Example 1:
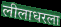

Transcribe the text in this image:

लीलाधरला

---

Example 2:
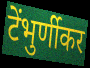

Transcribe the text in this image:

टेंभुर्णीकर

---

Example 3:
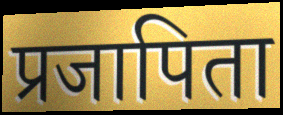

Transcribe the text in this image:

प्रजापिता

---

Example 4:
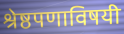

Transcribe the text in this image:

श्रेष्ठपणाविषयी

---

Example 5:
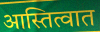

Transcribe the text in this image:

आस्तित्वात